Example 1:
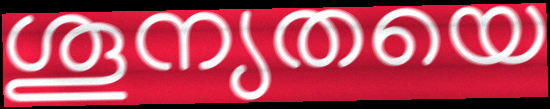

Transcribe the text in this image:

ശൂന്യതയെ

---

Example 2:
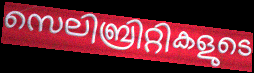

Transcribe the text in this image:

സെലിബ്രിറ്റികളുടെ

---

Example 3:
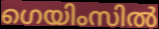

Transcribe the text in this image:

ഗെയിംസിൽ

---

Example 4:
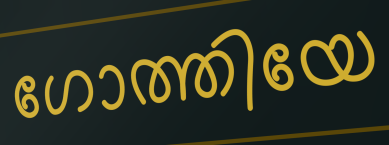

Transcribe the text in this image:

ഗോത്തിയേ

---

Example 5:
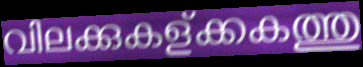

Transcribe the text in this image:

വിലക്കുകള്ക്കകത്തു